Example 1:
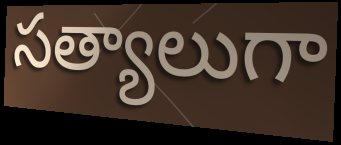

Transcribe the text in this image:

సత్యాలుగా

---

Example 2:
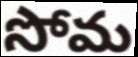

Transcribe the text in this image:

సోమ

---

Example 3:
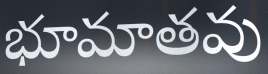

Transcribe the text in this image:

భూమాతవు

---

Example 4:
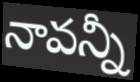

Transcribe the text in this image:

నావన్నీ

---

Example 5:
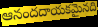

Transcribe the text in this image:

ఆనందదాయకమైనది